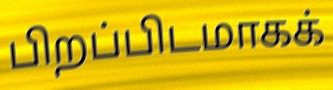
பிறப்பிடமாகக்